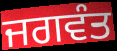
ਜਗਵੰਤ